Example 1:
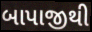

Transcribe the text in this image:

બાપાજીથી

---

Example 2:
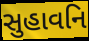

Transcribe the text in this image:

સુહાવનિ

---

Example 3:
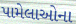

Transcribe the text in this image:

પામેલાઓના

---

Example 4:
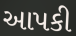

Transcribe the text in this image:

આપકી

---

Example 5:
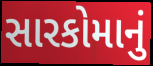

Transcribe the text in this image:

સારકોમાનું